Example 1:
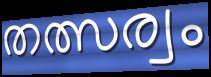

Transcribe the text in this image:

തത്സര്വം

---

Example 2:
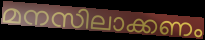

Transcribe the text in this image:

മനസിലാക്കണം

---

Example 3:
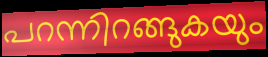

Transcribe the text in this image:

പറന്നിറങ്ങുകയും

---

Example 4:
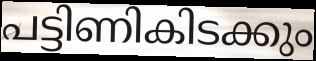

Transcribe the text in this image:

പട്ടിണികിടക്കും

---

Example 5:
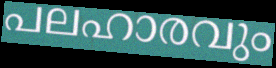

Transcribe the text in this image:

പലഹാരവും